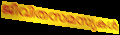
ജീവിതസമസ്യകൾ